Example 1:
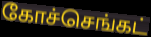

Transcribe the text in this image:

கோச்செங்கட்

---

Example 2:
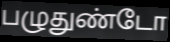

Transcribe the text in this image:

பழுதுண்டோ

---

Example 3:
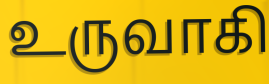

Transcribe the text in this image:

உருவாகி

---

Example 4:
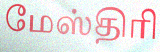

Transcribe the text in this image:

மேஸ்திரி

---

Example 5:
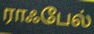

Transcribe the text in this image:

ராஃபேல்